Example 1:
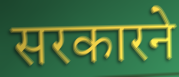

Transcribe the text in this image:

सरकारने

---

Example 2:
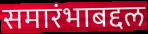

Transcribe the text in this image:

समारंभाबद्दल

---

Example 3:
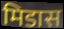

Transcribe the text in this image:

मिडास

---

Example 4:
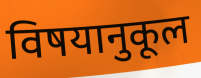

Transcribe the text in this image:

विषयानुकूल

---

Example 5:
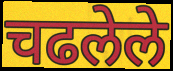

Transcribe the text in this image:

चढलेले